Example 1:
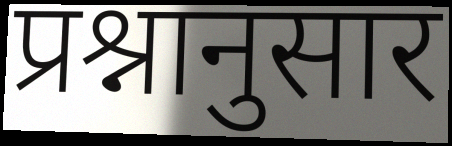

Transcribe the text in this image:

प्रश्नानुसार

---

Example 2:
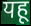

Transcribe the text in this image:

यहू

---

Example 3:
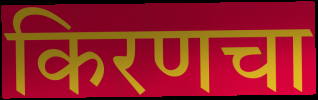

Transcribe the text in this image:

किरणचा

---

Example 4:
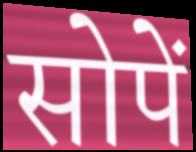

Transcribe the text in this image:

सोपें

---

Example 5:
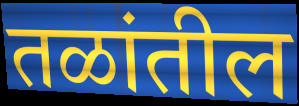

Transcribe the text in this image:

तळांतील